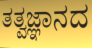
ತತ್ವಜ್ಞಾನದ